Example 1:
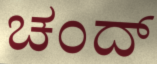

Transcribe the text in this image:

ಚಂದ್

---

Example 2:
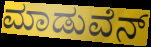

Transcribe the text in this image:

ಮಾಡುವೆನ್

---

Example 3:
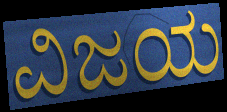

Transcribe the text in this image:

ವಿಜಯ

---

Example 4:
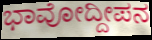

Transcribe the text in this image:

ಭಾವೋದ್ದೀಪನ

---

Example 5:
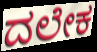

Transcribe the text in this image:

ದಲೇಕ